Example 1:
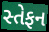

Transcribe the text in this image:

સ્તેફન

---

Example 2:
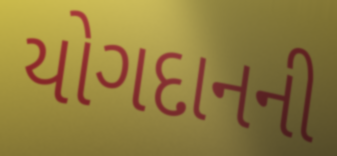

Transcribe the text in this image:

યોગદાનની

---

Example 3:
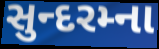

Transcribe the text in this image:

સુન્દરમ્ના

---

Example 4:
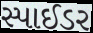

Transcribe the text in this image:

સ્પાઈડર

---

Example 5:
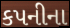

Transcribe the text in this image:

કપનીના